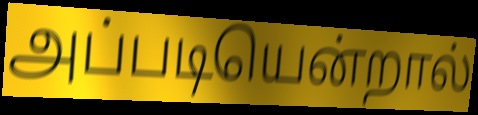
அப்படியென்றால்